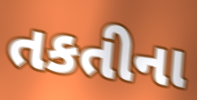
તકતીના